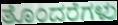
ತೊಂದರೆಗಳು